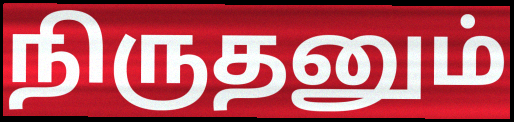
நிருதனும்